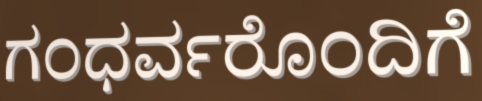
ಗಂಧರ್ವರೊಂದಿಗೆ